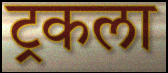
ट्रकला